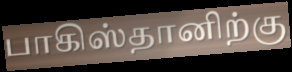
பாகிஸ்தானிற்கு